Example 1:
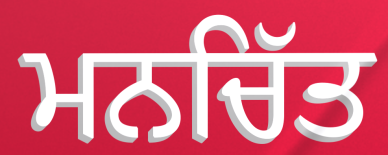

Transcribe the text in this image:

ਮਨਚਿੱਤ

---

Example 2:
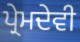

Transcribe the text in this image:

ਪ੍ਰੇਮਦੇਵੀ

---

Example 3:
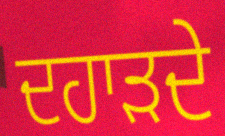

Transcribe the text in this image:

ਦਹਾੜਦੇ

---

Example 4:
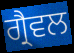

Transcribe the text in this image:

ਗ੍ਰੈਵਲ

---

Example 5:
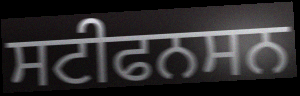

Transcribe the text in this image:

ਸਟੀਫਨਸਨ